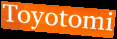
Toyotomi